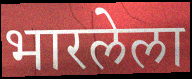
भारलेला